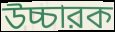
উচ্চারক